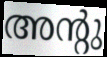
അന്റു